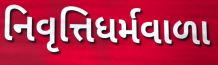
નિવૃત્તિધર્મવાળા